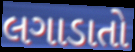
લગાડાતો